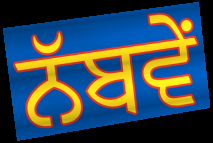
ਨੱਬਵੇਂ